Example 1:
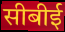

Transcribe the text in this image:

सीबीई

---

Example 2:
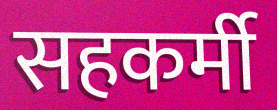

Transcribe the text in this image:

सहकर्मी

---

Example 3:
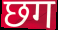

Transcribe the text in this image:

छग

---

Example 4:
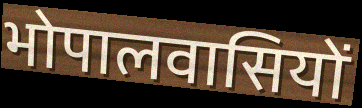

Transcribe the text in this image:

भोपालवासियों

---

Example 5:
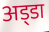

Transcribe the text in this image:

अड्‌डा